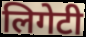
लिगेटी